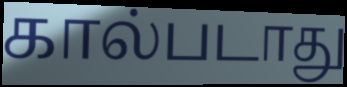
கால்படாது